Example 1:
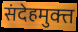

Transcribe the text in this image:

संदेहमुक्त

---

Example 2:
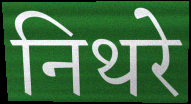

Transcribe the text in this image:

निथरे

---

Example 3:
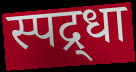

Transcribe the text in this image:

स्पद्र्धा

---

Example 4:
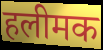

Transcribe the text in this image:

हलीमक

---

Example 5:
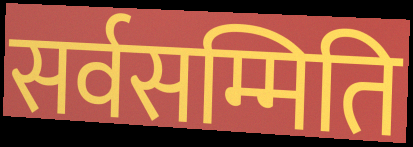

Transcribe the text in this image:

सर्वसम्मिति